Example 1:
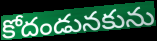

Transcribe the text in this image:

కోదండునకును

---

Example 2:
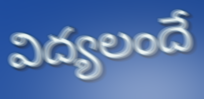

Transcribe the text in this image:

విద్యలందే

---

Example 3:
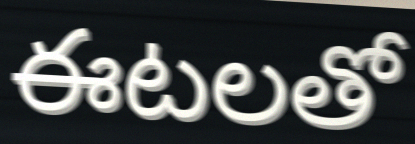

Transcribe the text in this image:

ఈటలతో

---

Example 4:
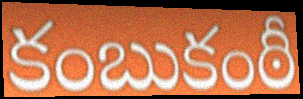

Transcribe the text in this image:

కంబుకంఠీ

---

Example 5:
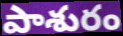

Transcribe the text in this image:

పాశురం